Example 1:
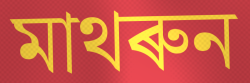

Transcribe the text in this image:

মাথৰুন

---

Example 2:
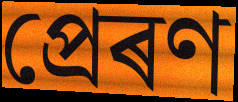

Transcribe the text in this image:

প্ৰেৰণ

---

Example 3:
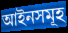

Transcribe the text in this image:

আইনসমূহ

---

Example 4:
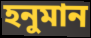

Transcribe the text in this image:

হনুমান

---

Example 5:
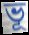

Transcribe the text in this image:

ভূ